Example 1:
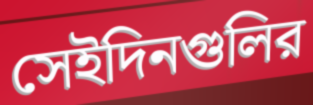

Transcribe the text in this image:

সেইদিনগুলির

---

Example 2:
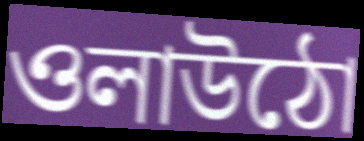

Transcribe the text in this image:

ওলাউঠো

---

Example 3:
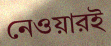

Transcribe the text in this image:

নেওয়ারই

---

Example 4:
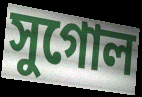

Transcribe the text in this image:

সুগোল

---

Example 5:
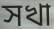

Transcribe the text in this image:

সখা